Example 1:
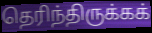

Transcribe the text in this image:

தெரிந்திருக்கக்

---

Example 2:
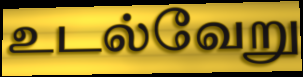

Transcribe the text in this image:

உடல்வேறு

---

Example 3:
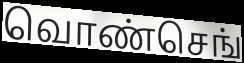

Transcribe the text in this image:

வொண்செங்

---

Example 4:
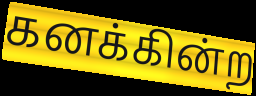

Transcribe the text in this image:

கனக்கின்ற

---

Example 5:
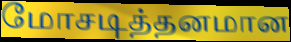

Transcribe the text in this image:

மோசடித்தனமான